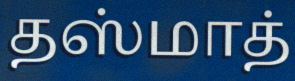
தஸ்மாத்